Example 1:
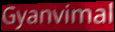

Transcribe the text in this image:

Gyanvimal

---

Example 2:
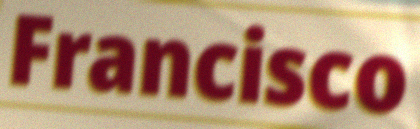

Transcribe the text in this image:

Francisco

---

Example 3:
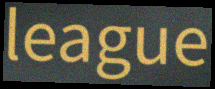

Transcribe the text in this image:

league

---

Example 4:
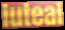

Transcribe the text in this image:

luteal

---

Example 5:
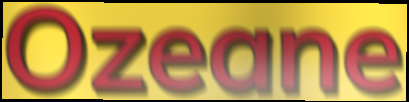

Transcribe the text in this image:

Ozeane